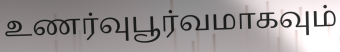
உணர்வுபூர்வமாகவும்